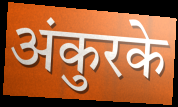
अंकुरके